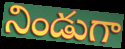
నిండుగా